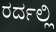
ರರ್ದಲ್ಲಿ